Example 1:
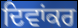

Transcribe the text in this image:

ਦਿਵਾਂਕਰ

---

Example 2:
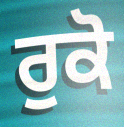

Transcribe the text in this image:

ਰੁਕੋ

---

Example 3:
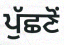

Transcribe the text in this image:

ਪੁੱਛਣੋਂ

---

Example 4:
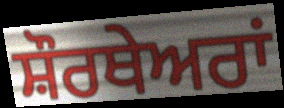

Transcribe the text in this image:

ਸ਼ੌਰਥੇਅਰਾਂ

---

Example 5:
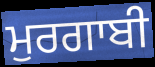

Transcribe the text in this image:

ਮੁਰਗਾਬੀ